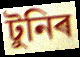
টুনিৰ